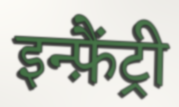
इन्फ़ैंट्री